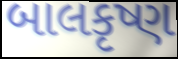
બાલકૃષ્ણ